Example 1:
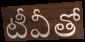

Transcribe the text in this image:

టీవీతో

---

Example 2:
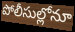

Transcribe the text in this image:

పోలీసుల్లోనూ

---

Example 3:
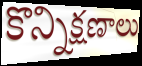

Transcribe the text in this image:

కొన్నిక్షణాలు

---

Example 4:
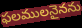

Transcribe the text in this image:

ఫలములనైనను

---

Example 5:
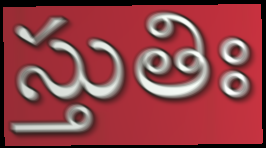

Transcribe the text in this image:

స్తుతిః